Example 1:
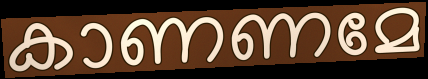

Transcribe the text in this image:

കാണണമേ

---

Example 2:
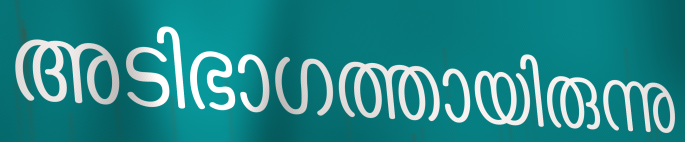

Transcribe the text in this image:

അടിഭാഗത്തായിരുന്നു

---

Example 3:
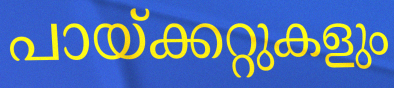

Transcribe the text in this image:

പായ്ക്കറ്റുകളും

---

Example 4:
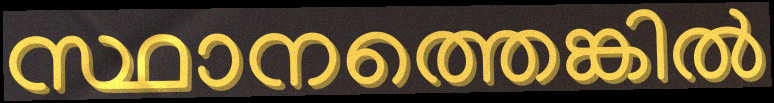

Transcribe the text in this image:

സ്ഥാനത്തെങ്കിൽ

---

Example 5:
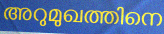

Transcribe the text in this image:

അറുമുഖത്തിനെ